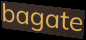
bagate